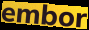
embor